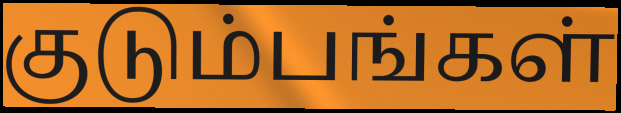
குடும்பங்கள்